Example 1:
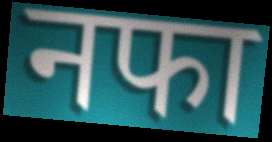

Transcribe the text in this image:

नफा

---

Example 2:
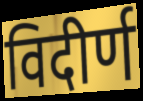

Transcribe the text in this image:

विदीर्ण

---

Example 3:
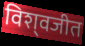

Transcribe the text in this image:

विश्वजीत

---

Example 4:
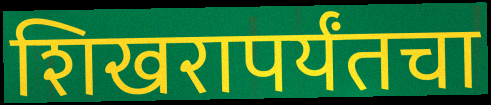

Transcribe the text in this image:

शिखरापर्यंतचा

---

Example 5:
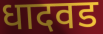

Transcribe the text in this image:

धादवड